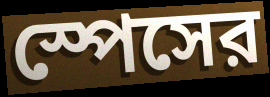
স্পেসের